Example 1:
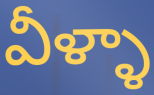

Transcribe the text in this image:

వీళ్ళా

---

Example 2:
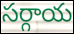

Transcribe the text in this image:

సర్గాయ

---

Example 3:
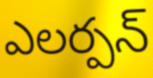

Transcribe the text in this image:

ఎలర్పన్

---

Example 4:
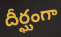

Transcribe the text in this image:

దీర్ఘంగా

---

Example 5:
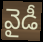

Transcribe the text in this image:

వైడీ